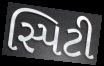
સ્પિટી